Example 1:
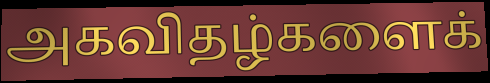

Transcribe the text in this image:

அகவிதழ்களைக்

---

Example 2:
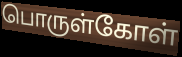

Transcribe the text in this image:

பொருள்கோள்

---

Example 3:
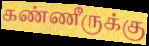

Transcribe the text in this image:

கண்ணீருக்கு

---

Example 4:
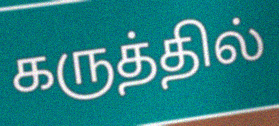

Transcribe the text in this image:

கருத்தில்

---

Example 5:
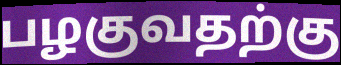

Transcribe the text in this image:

பழகுவதற்கு